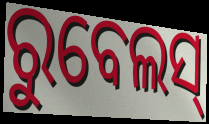
ରୁବେଲସ୍